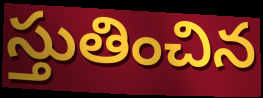
స్తుతించిన